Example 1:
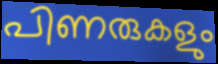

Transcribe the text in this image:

പിണരുകളും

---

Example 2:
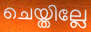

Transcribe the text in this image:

ചെയ്തില്ലേ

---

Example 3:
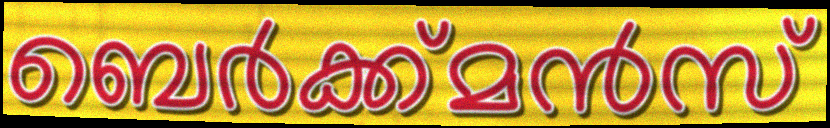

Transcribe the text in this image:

ബെർക്ക്മൻസ്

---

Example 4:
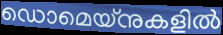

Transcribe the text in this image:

ഡൊമെയ്നുകളിൽ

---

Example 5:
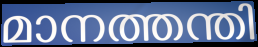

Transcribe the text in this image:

മാനത്തന്തി